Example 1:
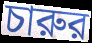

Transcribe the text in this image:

চারুর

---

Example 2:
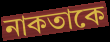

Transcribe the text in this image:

নাকতাকে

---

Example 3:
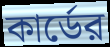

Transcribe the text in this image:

কার্ডের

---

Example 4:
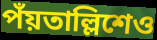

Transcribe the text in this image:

পঁয়তাল্লিশেও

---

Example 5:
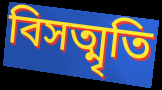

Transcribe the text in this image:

বিসত্মৃতি